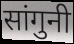
सांगुनी